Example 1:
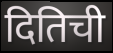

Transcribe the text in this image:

दितिची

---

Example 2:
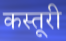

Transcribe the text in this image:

कस्तूरी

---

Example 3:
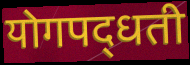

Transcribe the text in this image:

योगपद्धती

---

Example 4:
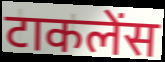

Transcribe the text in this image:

टाकलेंस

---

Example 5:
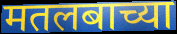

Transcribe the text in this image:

मतलबाच्या